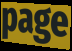
page